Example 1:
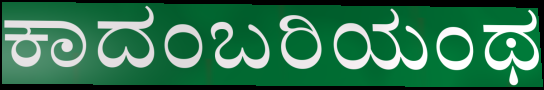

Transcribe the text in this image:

ಕಾದಂಬರಿಯಂಥ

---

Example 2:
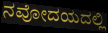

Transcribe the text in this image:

ನವೋದಯದಲ್ಲಿ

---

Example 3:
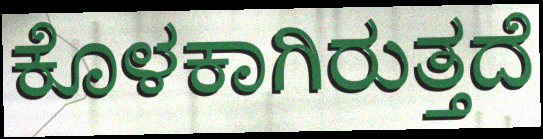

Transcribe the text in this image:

ಕೊಳಕಾಗಿರುತ್ತದೆ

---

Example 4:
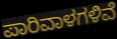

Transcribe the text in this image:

ಪಾರಿವಾಳಗಳಿವೆ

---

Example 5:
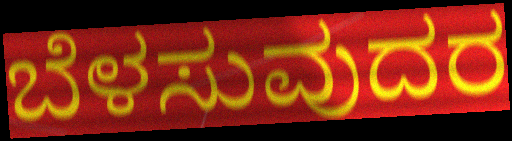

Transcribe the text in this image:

ಬೆಳಸುವುದರ